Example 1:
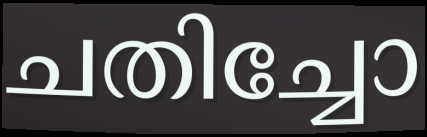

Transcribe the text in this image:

ചതിച്ചോ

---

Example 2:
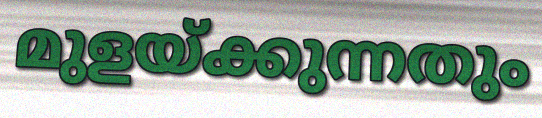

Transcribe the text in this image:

മുളയ്ക്കുന്നതും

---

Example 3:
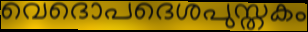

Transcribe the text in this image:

വെദൊപദെശപുസ്തകം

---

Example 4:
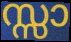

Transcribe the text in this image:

സ്സാ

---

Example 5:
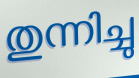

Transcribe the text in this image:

തുന്നിച്ചു